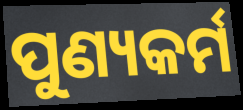
ପୁଣ୍ୟକର୍ମ